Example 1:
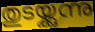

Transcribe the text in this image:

തുടയ്ക്കുന്നു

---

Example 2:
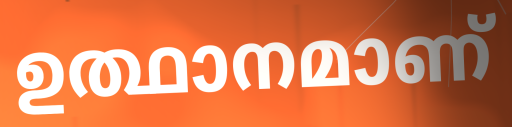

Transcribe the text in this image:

ഉത്ഥാനമാണ്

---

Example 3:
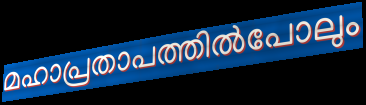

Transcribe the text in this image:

മഹാപ്രതാപത്തിൽപോലും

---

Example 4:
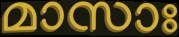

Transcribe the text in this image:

മാസാഃ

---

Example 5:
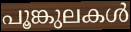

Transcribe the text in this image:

പൂങ്കുലകൾ